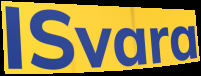
ISvara